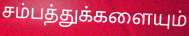
சம்பத்துக்களையும்